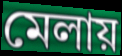
মেলায়